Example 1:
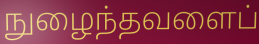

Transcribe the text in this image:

நுழைந்தவளைப்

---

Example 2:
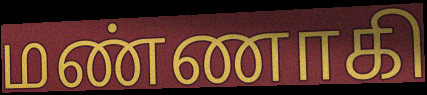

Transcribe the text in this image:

மண்ணாகி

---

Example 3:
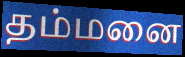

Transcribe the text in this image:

தம்மனை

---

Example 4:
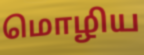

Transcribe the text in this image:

மொழிய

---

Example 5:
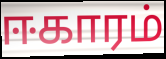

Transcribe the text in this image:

ஈகாரம்